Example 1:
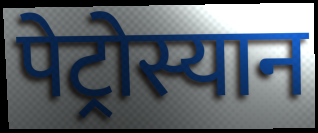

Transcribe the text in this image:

पेट्रोस्यान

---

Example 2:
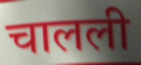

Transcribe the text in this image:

चालली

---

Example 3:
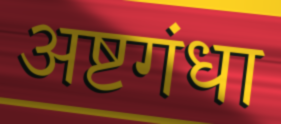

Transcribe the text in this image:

अष्टगंधा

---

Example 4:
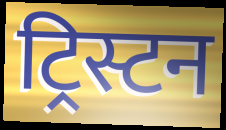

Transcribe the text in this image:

ट्रिस्टन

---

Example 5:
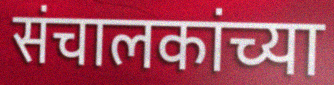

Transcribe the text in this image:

संचालकांच्या